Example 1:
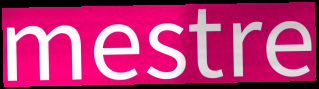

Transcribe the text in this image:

mestre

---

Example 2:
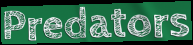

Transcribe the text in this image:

Predators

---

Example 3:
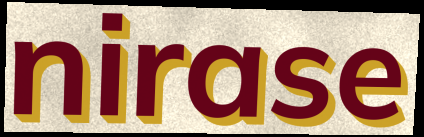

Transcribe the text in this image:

nirase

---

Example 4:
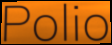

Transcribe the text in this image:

Polio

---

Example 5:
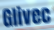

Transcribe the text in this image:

Glivec